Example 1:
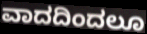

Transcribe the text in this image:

ವಾದದಿಂದಲೂ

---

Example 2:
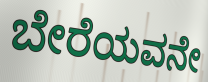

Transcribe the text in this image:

ಬೇರೆಯವನೇ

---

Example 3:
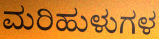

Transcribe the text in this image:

ಮರಿಹುಳುಗಳ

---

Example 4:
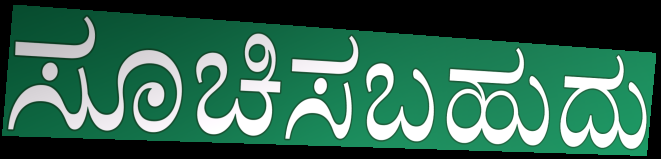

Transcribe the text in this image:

ಸೂಚಿಸಬಹುದು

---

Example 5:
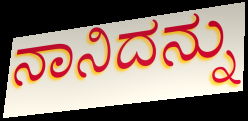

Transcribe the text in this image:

ನಾನಿದನ್ನು